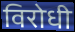
विरोधी